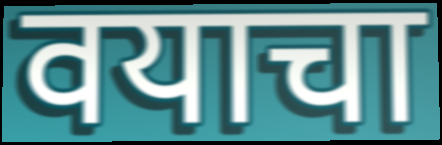
वयाचा